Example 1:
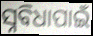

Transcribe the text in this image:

ସ୍ନବିଧାପାଇଁ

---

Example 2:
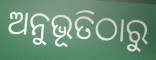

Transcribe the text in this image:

ଅନୁଭୂତିଠାରୁ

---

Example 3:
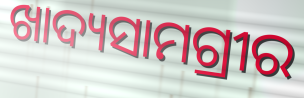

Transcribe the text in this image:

ଖାଦ୍ୟସାମଗ୍ରୀର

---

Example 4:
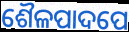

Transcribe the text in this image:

ଶୈଳପାଦପେ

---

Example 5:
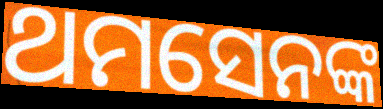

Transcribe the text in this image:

ଥମସେନଙ୍କ